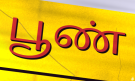
பூண்